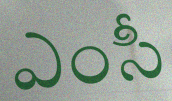
ఎంసీ